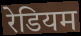
रेडियम